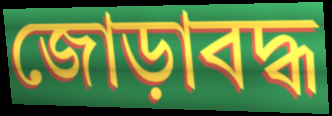
জোড়াবদ্ধ